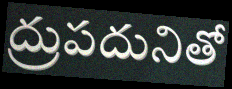
ద్రుపదునితో